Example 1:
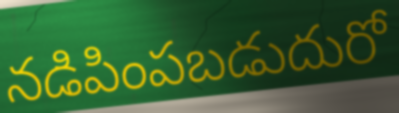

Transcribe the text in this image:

నడిపింపబడుదురో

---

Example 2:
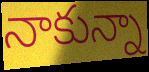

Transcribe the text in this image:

నాకున్నా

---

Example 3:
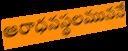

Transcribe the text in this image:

ఆరాధనస్థలముననే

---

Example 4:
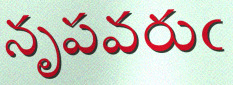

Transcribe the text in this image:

నృపవరుఁ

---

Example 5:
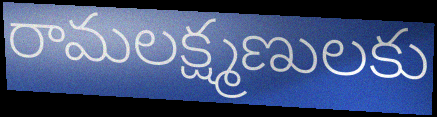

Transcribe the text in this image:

రామలక్ష్మణులకు